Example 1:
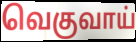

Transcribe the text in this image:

வெகுவாய்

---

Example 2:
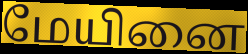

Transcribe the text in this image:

மேயினை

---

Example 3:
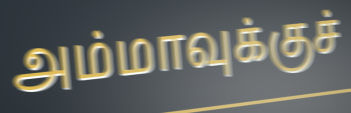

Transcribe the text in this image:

அம்மாவுக்குச்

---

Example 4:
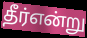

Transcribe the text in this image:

தீர்என்று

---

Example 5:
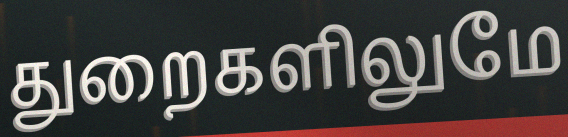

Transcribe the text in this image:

துறைகளிலுமே